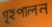
গৃহপালন